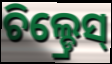
ଚିଲ୍ଡ୍ରେସ୍